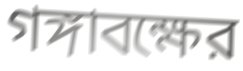
গঙ্গাবক্ষের